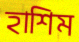
হাশিম